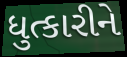
ધુત્કારીને